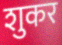
शुकर